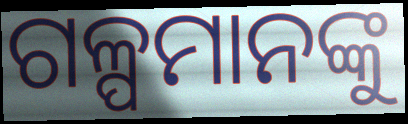
ଗଳ୍ପମାନଙ୍କୁ